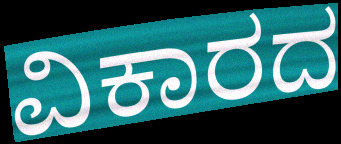
ವಿಕಾರದ